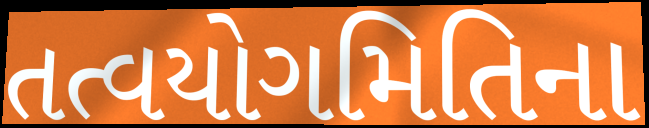
તત્વયોગમિતિના